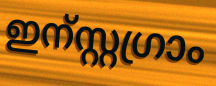
ഇന്സ്റ്റഗ്രാം